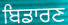
ਬਿਡਾਰਣ